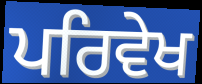
ਪਰਿਵੇਖ